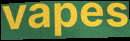
vapes